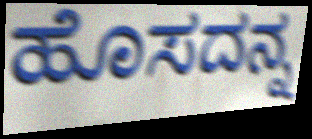
ಹೊಸದನ್ನ